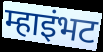
म्हाइंभट